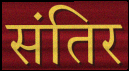
संतिर